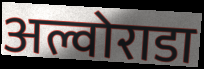
अल्वोराडा